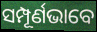
ସମ୍ପୂର୍ଣଭାବେ